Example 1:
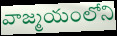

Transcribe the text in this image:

వాజ్మయంలోని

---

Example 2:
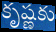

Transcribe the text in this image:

కృష్ణకు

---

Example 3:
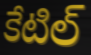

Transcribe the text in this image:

కేటిల్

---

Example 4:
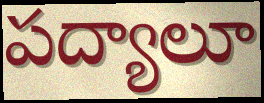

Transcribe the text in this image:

పద్యాలూ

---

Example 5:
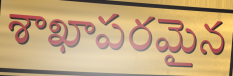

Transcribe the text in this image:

శాఖాపరమైన